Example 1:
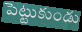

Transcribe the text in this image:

పెట్టుకుండు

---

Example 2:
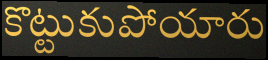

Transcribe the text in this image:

కొట్టుకుపోయారు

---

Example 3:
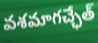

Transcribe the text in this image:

వశమాగచ్ఛేత్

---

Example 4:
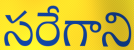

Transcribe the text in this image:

సరేగాని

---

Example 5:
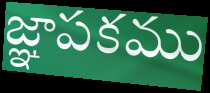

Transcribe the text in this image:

జ్ఞాపకము